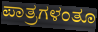
ಪಾತ್ರಗಳಂತೂ